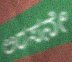
ಅರಸನೇ